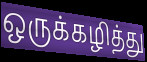
ஒருக்கழித்து